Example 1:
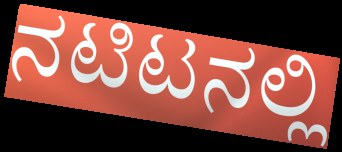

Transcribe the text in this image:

ನಟಿಟನಲ್ಲಿ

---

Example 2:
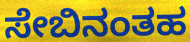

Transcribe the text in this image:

ಸೇಬಿನಂತಹ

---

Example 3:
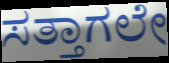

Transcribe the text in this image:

ಸತ್ತಾಗಲೇ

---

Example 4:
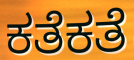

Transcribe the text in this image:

ಕತೆಕತೆ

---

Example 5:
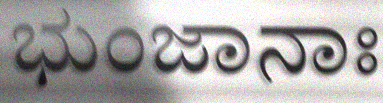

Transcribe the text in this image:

ಭುಂಜಾನಾಃ